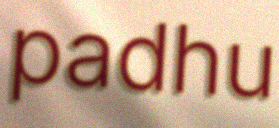
padhu